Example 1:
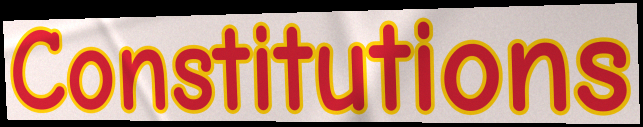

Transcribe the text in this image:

Constitutions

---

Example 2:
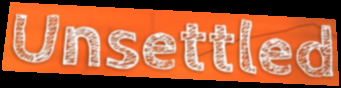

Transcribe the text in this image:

Unsettled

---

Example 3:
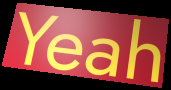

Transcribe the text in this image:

Yeah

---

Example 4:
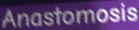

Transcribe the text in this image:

Anastomosis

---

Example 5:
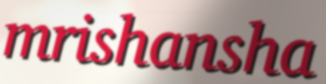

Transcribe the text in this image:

mrishansha